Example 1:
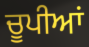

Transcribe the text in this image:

ਚੂਪੀਆਂ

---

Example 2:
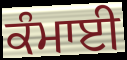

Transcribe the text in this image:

ਕੰਮਾਈ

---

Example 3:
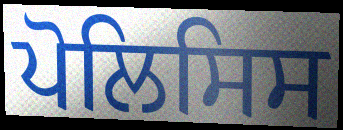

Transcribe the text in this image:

ਪੋਲਿਸਿਸ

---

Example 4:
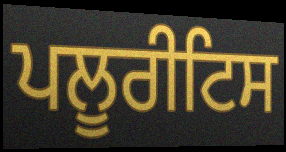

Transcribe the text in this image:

ਪਲੂਰੀਟਿਸ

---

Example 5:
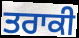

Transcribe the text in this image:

ਤਰਾਕੀ